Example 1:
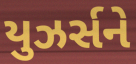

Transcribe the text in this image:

યુઝર્સને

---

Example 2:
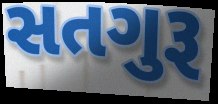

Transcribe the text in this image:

સતગુરૂ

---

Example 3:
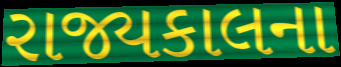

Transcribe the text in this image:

રાજ્યકાલના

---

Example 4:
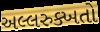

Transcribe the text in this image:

અલ્લરુક્ખતો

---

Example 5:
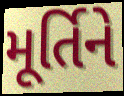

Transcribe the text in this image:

મૂર્તિને